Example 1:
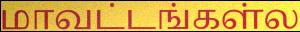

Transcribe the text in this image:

மாவட்டங்கள்ல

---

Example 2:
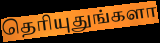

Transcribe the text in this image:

தெரியுதுங்களா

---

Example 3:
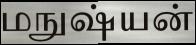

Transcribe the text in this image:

மநுஷ்யன்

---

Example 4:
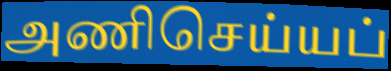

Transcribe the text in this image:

அணிசெய்யப்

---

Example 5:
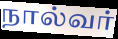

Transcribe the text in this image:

நால்வர்